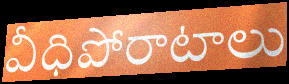
వీధిపోరాటాలు